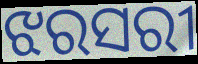
ଝରସରୀ